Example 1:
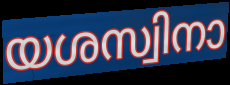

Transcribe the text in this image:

യശസ്വിനാ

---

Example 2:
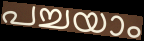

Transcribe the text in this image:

പച്ചയാം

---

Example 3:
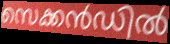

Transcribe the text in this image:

സെക്കൻഡിൽ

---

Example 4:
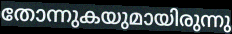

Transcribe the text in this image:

തോന്നുകയുമായിരുന്നു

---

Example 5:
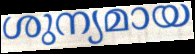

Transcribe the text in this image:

ശുന്യമായ